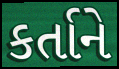
કર્તાને